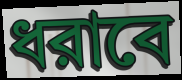
ধরাবে